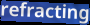
refracting